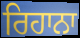
ਰਿਹਾਨਾ